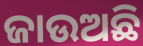
ଜାଉଅଛି